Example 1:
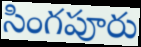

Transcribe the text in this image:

సింగపూరు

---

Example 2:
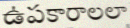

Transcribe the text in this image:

ఉపకారాలలా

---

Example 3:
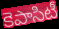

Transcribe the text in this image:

కెపాసిటీ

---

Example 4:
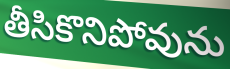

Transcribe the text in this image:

తీసికొనిపోవును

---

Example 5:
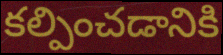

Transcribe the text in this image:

కల్పించడానికి